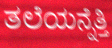
ತಲೆಯನ್ನೆತ್ತಿ